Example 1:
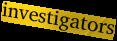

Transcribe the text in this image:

investigators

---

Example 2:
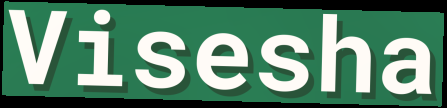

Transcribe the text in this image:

Visesha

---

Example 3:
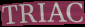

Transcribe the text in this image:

TRIAC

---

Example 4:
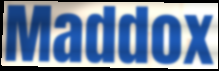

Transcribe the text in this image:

Maddox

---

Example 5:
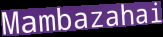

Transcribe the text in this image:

Mambazahai